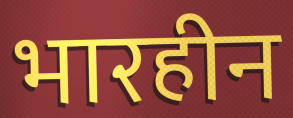
भारहीन